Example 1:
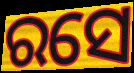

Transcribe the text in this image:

ରସେ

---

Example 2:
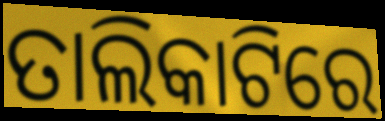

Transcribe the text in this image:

ତାଲିକାଟିରେ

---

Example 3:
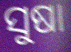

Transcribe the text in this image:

ସୁଷା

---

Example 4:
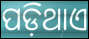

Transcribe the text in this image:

ପଡ଼ିଥାଏ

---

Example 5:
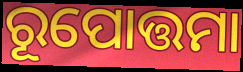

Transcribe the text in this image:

ରୂପୋତ୍ତମା